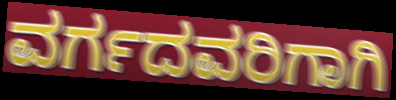
ವರ್ಗದವರಿಗಾಗಿ